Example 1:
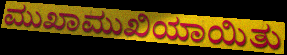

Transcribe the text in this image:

ಮುಖಾಮುಖಿಯಾಯಿತು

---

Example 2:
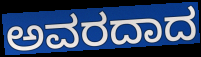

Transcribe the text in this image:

ಅವರದಾದ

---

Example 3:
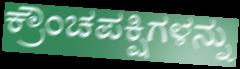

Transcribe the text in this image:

ಕ್ರೌಂಚಪಕ್ಷಿಗಳನ್ನು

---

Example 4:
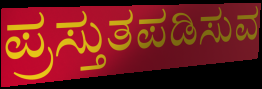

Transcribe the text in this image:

ಪ್ರಸ್ತುತಪಡಿಸುವ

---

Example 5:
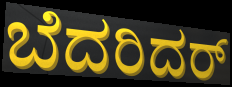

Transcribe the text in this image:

ಬೆದರಿದರ್